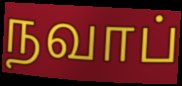
நவாப்